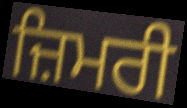
ਜ਼ਿਮਰੀ